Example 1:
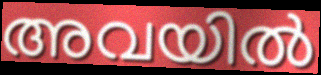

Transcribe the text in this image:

അവയിൽ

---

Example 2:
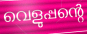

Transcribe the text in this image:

വെളുപ്പന്റെ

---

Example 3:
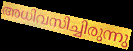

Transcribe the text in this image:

അധിവസിച്ചിരുന്നു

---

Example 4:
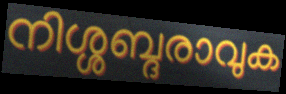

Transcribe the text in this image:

നിശ്ശബ്ദരാവുക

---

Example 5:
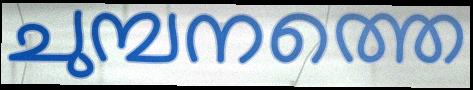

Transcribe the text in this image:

ചുമ്പനത്തെ